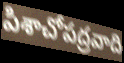
పిశాచోపద్రవాది